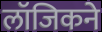
लॉजिकने